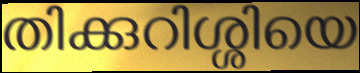
തിക്കുറിശ്ശിയെ